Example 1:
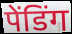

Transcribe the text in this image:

पेंडिंग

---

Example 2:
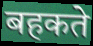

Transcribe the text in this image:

बहकते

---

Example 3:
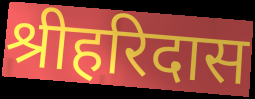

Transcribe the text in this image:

श्रीहरिदास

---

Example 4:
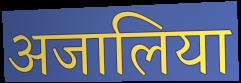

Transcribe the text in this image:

अजालिया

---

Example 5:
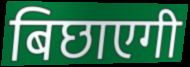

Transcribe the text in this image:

बिछाएगी